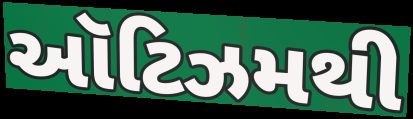
ઑટિઝમથી